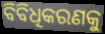
ବିବିଧିକରଣକୁ